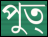
পুত্